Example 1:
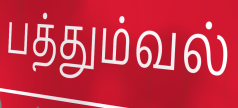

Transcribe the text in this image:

பத்தும்வல்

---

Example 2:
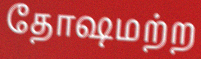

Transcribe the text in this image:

தோஷமற்ற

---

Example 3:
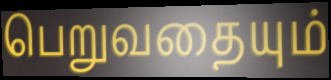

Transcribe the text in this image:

பெறுவதையும்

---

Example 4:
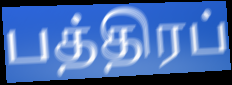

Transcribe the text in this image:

பத்திரப்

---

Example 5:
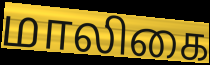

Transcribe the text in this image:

மாலிகை